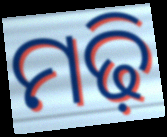
ମଢ଼ି